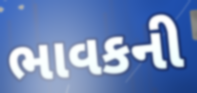
ભાવકની